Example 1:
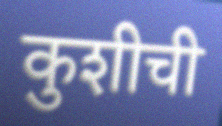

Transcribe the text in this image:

कुशीची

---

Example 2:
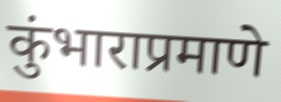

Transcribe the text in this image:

कुंभाराप्रमाणे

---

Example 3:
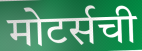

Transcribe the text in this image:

मोटर्सची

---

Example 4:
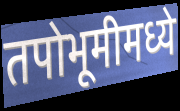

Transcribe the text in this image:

तपोभूमीमध्ये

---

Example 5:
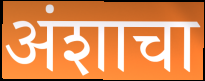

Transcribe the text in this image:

अंशाचा